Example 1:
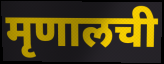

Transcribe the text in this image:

मृणालची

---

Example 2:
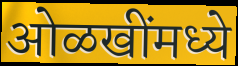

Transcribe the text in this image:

ओळखींमध्ये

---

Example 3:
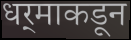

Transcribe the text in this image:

धर्माकडून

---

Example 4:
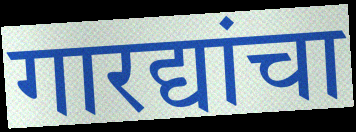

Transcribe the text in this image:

गारद्यांचा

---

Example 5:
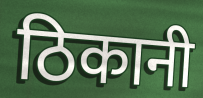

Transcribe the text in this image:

ठिकानी